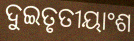
ଦୁଇତୃତୀୟାଂଶ